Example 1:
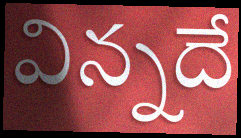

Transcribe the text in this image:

విన్నదే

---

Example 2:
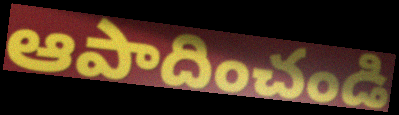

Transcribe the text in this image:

ఆపాదించండి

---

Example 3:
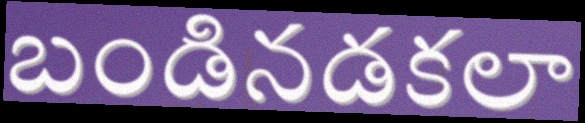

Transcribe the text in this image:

బండినడకలా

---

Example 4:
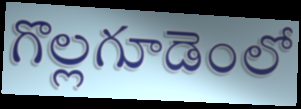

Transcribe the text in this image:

గొల్లగూడెంలో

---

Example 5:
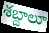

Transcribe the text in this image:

శబ్దాలూ